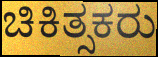
ಚಿಕಿತ್ಸಕರು